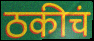
ठकीचं